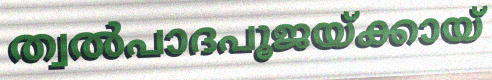
ത്വൽപാദപൂജയ്ക്കായ്